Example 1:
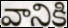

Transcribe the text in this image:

వానికి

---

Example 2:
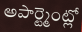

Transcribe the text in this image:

అపార్ట్మెంట్లో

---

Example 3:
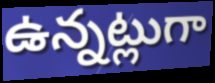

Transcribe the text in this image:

ఉన్నట్లుగా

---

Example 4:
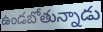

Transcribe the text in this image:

ఉండబోతున్నాడు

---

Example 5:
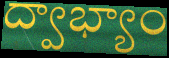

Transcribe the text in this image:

ద్వాభ్యాం